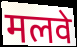
मलवे